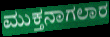
ಮುಕ್ತನಾಗಲಾರ